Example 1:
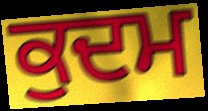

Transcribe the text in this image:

ਕੁਦਮ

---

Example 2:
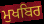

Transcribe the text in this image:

ਮੁਖਬਿਰ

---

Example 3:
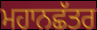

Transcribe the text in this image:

ਮਹਾਨਛੱਤਰ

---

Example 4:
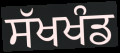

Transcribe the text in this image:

ਸੱਖਖੰਡ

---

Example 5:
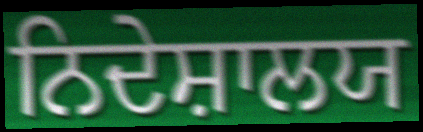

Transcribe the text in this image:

ਨਿਦੇਸ਼ਾਲਯ